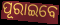
ପୂରାଇବେ